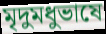
মৃদুমধুভাষে